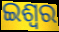
ଇଶ୍ବର